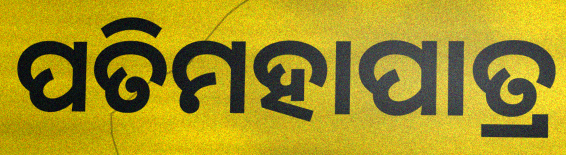
ପତିମହାପାତ୍ର